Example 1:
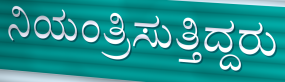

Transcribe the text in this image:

ನಿಯಂತ್ರಿಸುತ್ತಿದ್ದರು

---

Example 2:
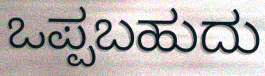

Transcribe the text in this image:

ಒಪ್ಪಬಹುದು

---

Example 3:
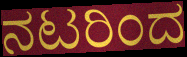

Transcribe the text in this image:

ನಟರಿಂದ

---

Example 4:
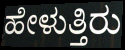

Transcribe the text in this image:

ಹೇಳುತ್ತಿರು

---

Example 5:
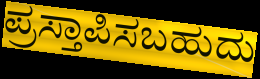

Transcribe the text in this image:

ಪ್ರಸ್ತಾಪಿಸಬಹುದು